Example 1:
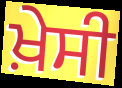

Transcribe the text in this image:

ਖ਼ੇਸੀ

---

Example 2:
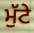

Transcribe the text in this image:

ਮੁੱਟੇ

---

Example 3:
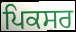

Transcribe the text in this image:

ਪਿਕਸਰ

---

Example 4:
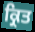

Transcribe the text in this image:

ਕ੍ਰਿਤ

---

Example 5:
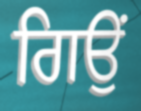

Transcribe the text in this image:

ਗਿਉਂ